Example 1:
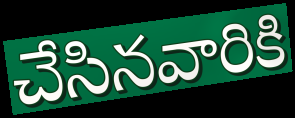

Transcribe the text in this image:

చేసినవారికి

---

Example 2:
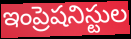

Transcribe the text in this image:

ఇంప్రెషనిస్టుల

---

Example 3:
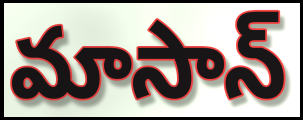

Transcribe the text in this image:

మాసాన్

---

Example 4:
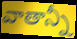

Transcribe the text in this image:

వాతాన్నీ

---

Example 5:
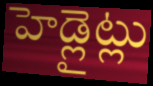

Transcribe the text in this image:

హెడ్లైట్లు